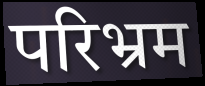
परिभ्रम